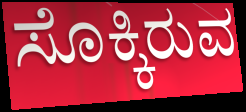
ಸೊಕ್ಕಿರುವ